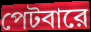
পেটবারে